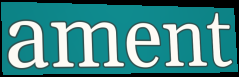
ament